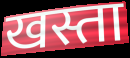
खस्ता